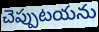
చెప్పుటయను